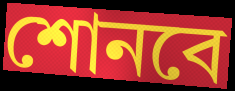
শোনবে